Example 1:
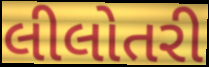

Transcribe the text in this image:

લીલોતરી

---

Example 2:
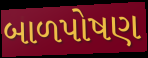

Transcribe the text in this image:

બાળપોષણ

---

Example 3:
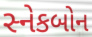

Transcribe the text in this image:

સ્નેકબોન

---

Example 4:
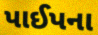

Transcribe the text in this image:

પાઈપના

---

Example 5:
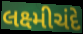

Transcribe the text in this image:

લક્ષ્મીચંદે